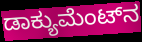
ಡಾಕ್ಯುಮೆಂಟ್‌ನ